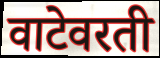
वाटेवरती